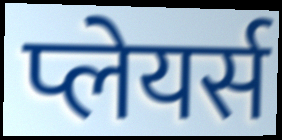
प्‍लेयर्स